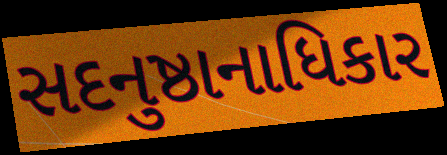
સદનુષ્ઠાનાધિકાર